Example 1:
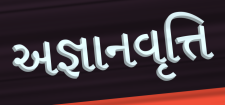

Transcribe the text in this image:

અજ્ઞાનવૃત્તિ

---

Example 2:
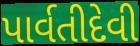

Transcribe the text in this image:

પાર્વતીદેવી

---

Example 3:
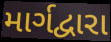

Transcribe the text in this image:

માર્ગદ્વારા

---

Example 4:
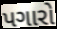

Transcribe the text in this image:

પગારો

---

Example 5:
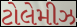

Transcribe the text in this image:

ટોલેમીઝ